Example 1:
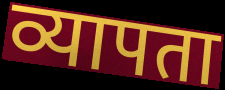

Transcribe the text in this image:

व्यापता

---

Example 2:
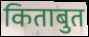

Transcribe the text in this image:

किताबुत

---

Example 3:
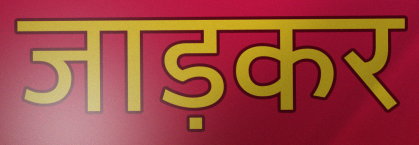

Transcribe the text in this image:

जाड़कर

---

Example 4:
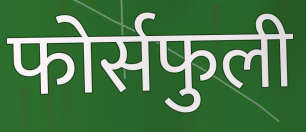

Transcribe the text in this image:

फोर्सफुली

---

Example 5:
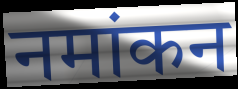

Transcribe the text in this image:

नमांकन